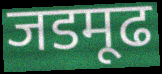
जडमूढ